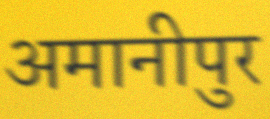
अमानीपुर